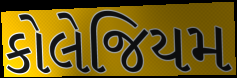
કોલેજિયમ